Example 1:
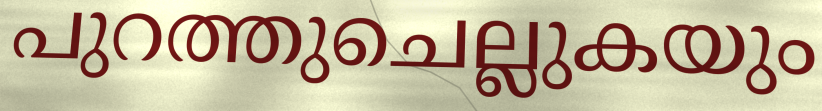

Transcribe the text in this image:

പുറത്തുചെല്ലുകയും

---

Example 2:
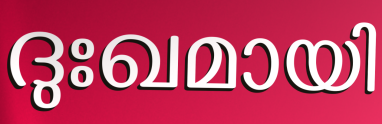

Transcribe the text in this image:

ദുഃഖമായി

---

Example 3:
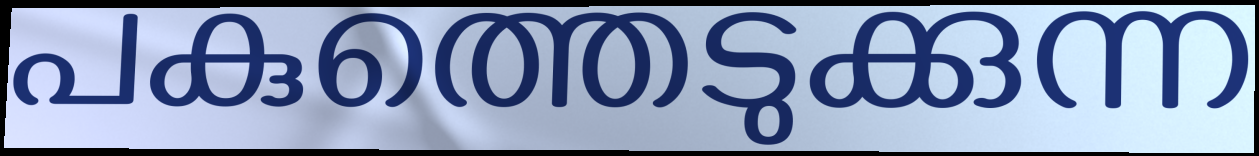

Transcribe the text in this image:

പകുത്തെടുക്കുന്ന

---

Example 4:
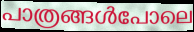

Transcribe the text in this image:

പാത്രങ്ങൾപോലെ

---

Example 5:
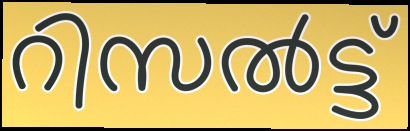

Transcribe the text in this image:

റിസൽട്ട്